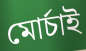
মোর্চাই